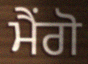
ਮੈਂਗੋ